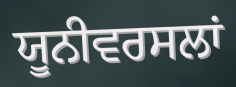
ਯੂਨੀਵਰਸਲਾਂ